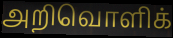
அறிவொளிக்